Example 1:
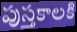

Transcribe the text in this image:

పుస్తకాలకి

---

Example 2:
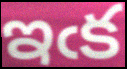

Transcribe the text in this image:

ఇఁక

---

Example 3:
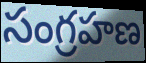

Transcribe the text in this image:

సంగ్రహణ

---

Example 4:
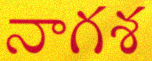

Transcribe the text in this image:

నాగశ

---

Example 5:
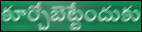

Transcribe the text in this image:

కూర్చోబెట్టేందుకు